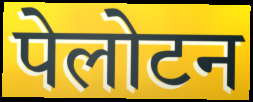
पेलोटन